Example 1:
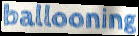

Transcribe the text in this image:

ballooning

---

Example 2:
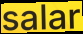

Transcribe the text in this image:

salar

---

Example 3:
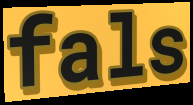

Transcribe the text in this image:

fals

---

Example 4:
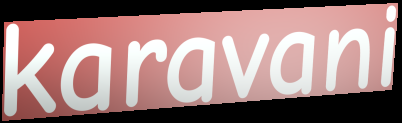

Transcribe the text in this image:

karavani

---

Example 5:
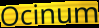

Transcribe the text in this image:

Ocinum